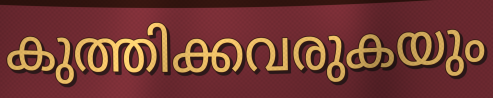
കുത്തിക്കവരുകയും